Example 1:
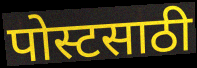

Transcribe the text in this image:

पोस्टसाठी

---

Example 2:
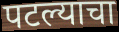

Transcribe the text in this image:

पटल्याचा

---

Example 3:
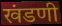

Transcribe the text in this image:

खंडणी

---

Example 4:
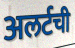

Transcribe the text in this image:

अलर्टची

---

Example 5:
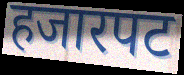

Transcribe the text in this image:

हजारपट